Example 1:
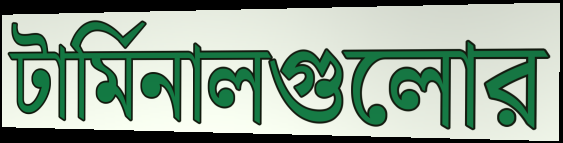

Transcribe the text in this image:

টার্মিনালগুলোর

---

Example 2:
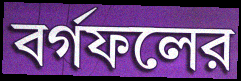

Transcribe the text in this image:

বর্গফলের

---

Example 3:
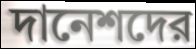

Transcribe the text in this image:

দানেশদের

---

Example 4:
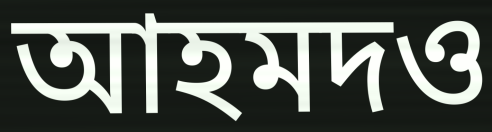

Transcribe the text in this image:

আহমদও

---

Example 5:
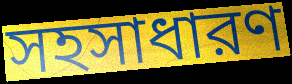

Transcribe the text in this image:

সহসাধারণ